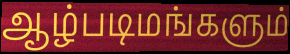
ஆழ்படிமங்களும்